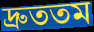
দ্রুততম